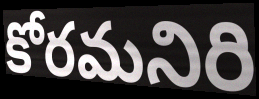
కోరమనిరి